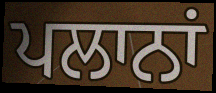
ਪਲਾਨਾਂ